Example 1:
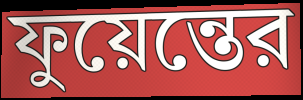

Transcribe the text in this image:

ফুয়েন্তের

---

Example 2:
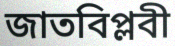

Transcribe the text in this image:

জাতবিপ্লবী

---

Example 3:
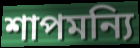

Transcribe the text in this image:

শাপমন্যি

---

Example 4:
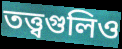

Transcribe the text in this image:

তত্ত্বগুলিও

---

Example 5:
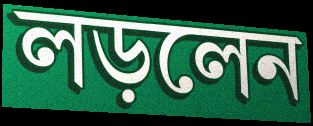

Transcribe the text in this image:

লড়লেন